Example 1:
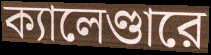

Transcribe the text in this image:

ক্যালেণ্ডারে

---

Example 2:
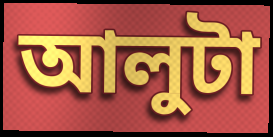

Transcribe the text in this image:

আলুটা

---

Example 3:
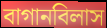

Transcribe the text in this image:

বাগানবিলাস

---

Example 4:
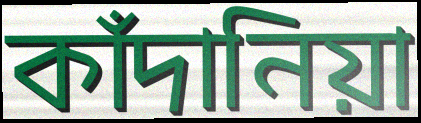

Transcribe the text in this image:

কাঁদানিয়া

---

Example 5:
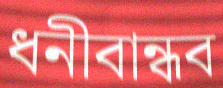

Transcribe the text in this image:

ধনীবান্ধব